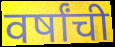
वर्षांची